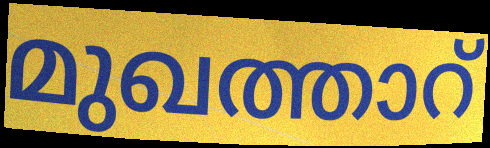
മുഖത്താറ്